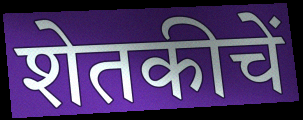
शेतकीचें